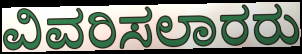
ವಿವರಿಸಲಾರರು